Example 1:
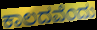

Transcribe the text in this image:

ಕಾಲದವೆಂದು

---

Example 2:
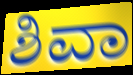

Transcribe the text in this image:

ಶಿವಾ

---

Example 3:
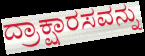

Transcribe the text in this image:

ದ್ರಾಕ್ಷಾರಸವನ್ನು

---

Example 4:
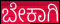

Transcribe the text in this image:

ಬೇಕಾಗಿ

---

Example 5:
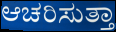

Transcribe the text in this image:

ಆಚರಿಸುತ್ತಾ